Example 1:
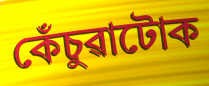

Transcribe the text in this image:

কেঁচুৱাটোক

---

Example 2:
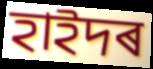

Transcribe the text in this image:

হাইদৰ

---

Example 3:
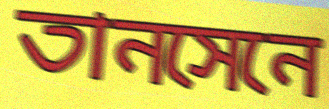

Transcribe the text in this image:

তানসেনে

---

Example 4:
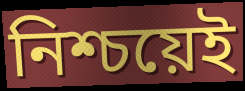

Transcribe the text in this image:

নিশ্চয়েই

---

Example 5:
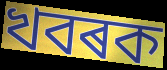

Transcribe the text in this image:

খবৰক